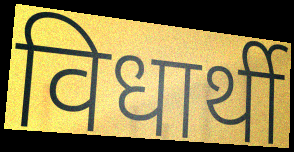
विधार्थी